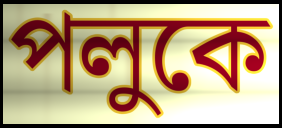
পলুকে